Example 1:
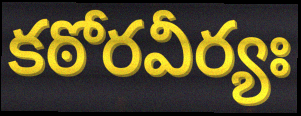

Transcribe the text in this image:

కఠోరవీర్యః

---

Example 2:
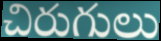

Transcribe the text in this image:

చిరుగులు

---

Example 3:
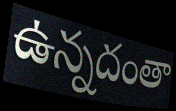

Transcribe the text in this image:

ఉన్నదంతా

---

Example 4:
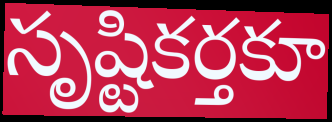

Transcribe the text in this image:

సృష్టికర్తకూ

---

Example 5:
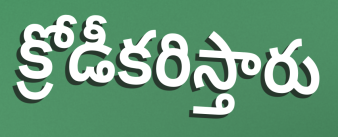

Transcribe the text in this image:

క్రోడీకరిస్తారు